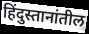
हिंदुस्तानांतील